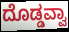
ದೊಡ್ಡವ್ವಾ